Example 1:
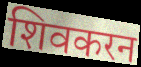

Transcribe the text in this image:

शिवकरन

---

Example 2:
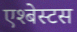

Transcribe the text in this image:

एश्बेस्टस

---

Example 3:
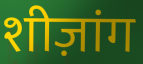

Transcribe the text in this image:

शीज़ांग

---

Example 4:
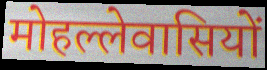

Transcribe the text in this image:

मोहल्लेवासियों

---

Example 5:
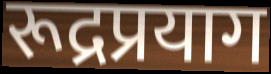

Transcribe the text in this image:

रूद्रप्रयाग